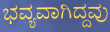
ಭವ್ಯವಾಗಿದ್ದವು